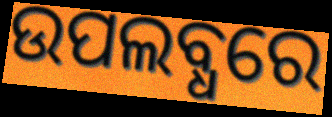
ଉପଲବ୍ଧରେ